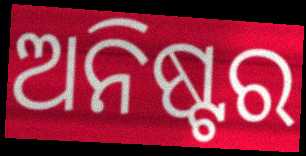
ଅନିଷ୍ଟର